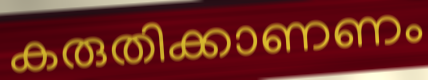
കരുതിക്കാണണം